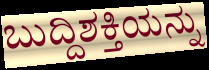
ಬುದ್ದಿಶಕ್ತಿಯನ್ನು